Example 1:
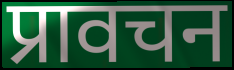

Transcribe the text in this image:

प्रावचन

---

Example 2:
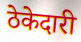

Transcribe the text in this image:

ठेकेदारी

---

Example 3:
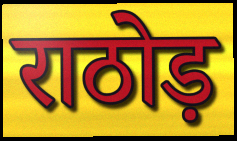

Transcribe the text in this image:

राठोड़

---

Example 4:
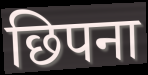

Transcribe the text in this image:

छिपना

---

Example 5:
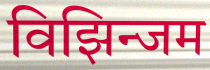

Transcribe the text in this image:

विझिन्जम